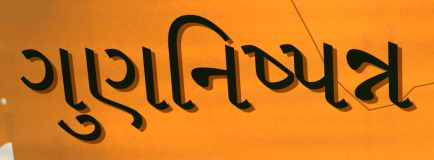
ગુણનિષ્પન્ન